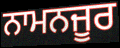
ਨਾਮਨਜੂਰ